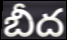
బీద